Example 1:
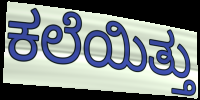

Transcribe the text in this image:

ಕಲೆಯಿತ್ತು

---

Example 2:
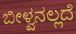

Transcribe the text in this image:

ಬೀಳ್ವನಲ್ಲದೆ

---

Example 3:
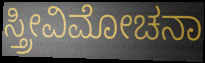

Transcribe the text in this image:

ಸ್ತ್ರೀವಿಮೋಚನಾ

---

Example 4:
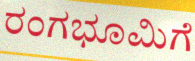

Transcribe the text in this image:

ರಂಗಭೂಮಿಗೆ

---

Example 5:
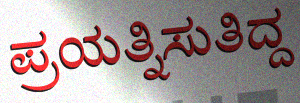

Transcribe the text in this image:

ಪ್ರಯತ್ನಿಸುತಿದ್ದ